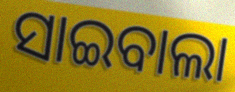
ସାଇବାଲା